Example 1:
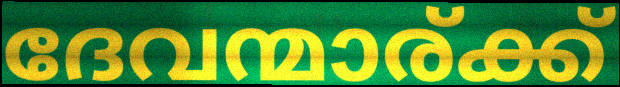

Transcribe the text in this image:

ദേവന്മാര്ക്ക്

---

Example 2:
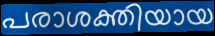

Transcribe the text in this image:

പരാശക്തിയായ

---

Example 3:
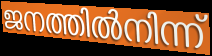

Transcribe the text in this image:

ജനത്തിൽനിന്ന്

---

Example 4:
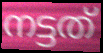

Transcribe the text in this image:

നട്ടത്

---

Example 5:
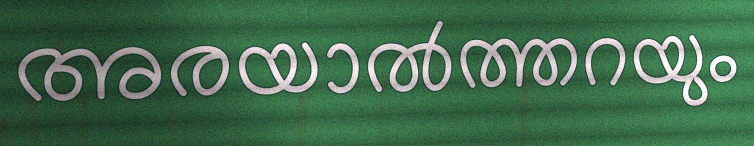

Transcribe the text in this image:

അരയാൽത്തറയും